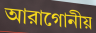
আরাগোনীয়